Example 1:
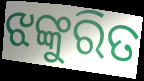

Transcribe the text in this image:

ଝଙ୍କୁରିତ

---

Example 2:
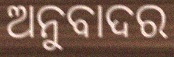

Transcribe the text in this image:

ଅନୁବାଦର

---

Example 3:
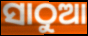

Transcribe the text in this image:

ସାଠୁଆ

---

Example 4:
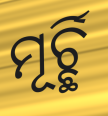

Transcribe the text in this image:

ମୂର୍ଚ୍ଛି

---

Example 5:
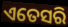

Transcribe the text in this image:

ଏତେସରି